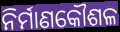
ନିର୍ମାଣକୌଶଳ